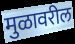
मुळावरील